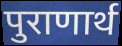
पुराणार्थ